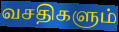
வசதிகளும்